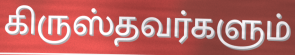
கிருஸ்தவர்களும்